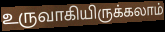
உருவாகியிருக்கலாம்